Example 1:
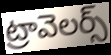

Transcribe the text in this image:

ట్రావెలర్స్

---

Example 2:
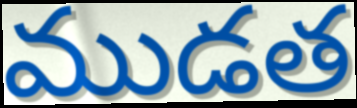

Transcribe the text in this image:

ముడత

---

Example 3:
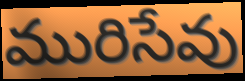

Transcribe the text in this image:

మురిసేవు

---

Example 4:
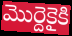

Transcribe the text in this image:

మొర్దెకైకి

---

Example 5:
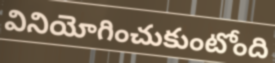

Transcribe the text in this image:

వినియోగించుకుంటోంది